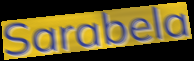
Sarabela